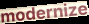
modernize